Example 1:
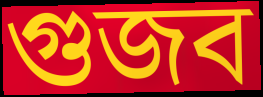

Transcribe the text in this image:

গুজব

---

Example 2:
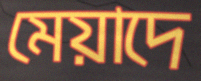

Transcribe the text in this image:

মেয়াদে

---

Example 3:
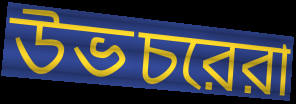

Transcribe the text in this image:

উভচরেরা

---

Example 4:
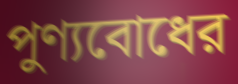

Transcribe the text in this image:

পুণ্যবোধের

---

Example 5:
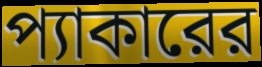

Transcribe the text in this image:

প্যাকারের